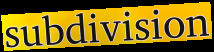
subdivision